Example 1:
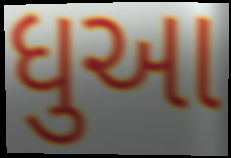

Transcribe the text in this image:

ધુઆ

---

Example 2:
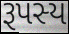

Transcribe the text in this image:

રૂપસ્ય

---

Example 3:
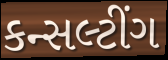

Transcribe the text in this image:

કન્સલ્ટીંગ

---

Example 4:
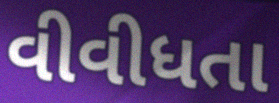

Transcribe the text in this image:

વીવીધતા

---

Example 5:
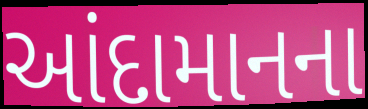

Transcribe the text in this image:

આંદામાનના